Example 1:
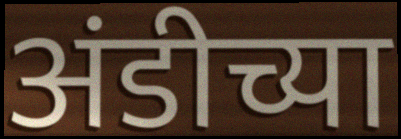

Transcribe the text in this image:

अंडीच्या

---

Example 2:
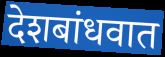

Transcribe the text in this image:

देशबांधवात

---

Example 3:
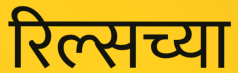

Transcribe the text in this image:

रिल्सच्या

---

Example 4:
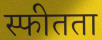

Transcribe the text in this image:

स्फीतता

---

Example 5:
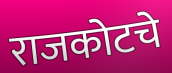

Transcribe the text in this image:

राजकोटचे